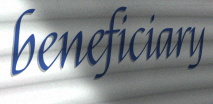
beneficiary